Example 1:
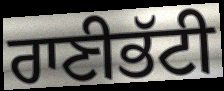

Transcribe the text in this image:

ਰਾਣੀਭੱਟੀ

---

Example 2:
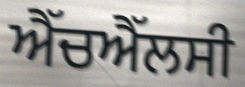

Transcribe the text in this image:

ਐੱਚਐੱਲਸੀ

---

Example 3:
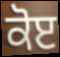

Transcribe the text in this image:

ਕੋੲ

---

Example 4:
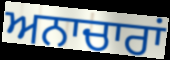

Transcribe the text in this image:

ਅਨਾਚਾਰਾਂ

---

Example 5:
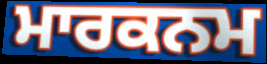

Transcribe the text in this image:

ਮਾਰਕਨਮ